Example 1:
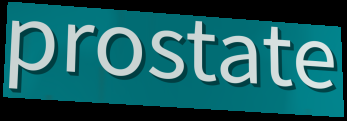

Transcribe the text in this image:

prostate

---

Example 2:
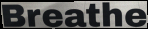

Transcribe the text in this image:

Breathe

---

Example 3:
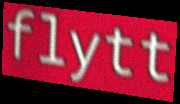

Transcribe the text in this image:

flytt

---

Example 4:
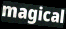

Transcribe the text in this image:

magical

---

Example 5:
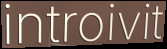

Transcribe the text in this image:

introivit